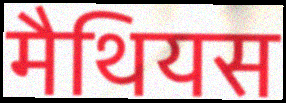
मैथियस